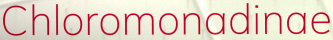
Chloromonadinae